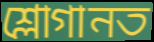
শ্লোগানত